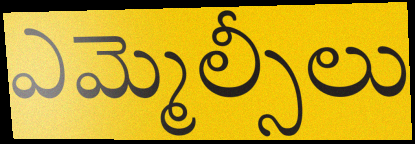
ఎమ్మెల్సీలు